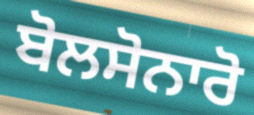
ਬੋਲਸੋਨਾਰੋ